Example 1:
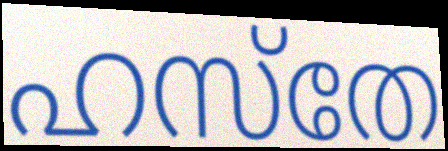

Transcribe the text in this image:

ഹസ്തേ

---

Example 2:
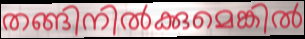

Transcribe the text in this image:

തങ്ങിനിൽക്കുമെങ്കിൽ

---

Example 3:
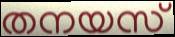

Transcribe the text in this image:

തനയസ്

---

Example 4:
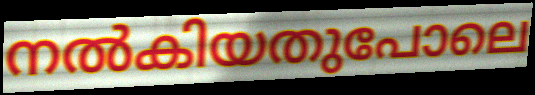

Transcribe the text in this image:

നൽകിയതുപോലെ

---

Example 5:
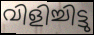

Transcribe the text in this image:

വിളിച്ചിട്ടു